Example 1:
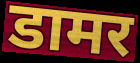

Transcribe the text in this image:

डामर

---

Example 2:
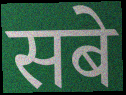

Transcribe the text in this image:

सबे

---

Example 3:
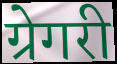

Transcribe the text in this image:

ग्रेगरी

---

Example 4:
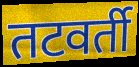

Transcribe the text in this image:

तटवर्ती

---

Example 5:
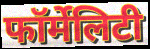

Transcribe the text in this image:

फॉर्मेलिटी